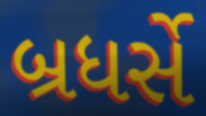
બ્રધર્સે